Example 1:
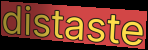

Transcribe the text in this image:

distaste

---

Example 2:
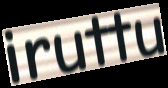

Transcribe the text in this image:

iruttu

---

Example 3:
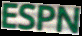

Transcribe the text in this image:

ESPN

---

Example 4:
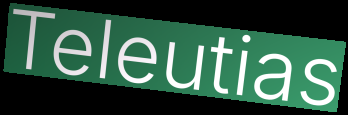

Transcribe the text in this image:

Teleutias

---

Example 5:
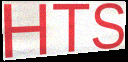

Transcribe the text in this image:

HTS